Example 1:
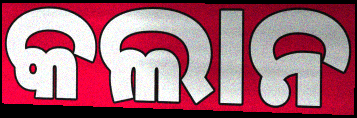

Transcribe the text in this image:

କଲାନ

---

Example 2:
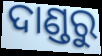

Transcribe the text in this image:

ଦାଣ୍ଡରୁ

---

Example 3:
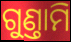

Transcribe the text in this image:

ଗୁଣ୍ତାମି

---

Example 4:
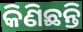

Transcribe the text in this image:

କିଣିଛନ୍ତି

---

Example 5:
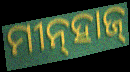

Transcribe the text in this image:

ମୀନ୍‌ହାଜ୍